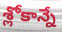
శ్లోకాన్నే